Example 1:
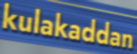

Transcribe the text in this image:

kulakaddan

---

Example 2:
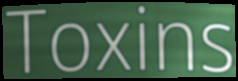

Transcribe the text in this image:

Toxins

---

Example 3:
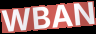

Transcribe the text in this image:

WBAN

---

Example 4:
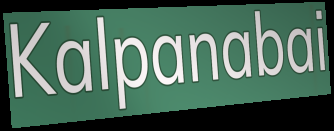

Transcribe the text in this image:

Kalpanabai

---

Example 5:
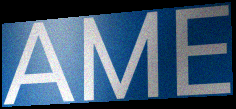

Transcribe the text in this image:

AME